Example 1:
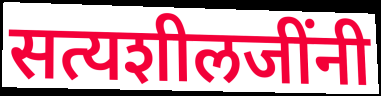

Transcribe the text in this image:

सत्यशीलजींनी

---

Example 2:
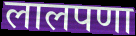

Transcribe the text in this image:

लालपणा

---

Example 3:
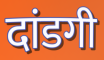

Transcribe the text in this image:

दांडगी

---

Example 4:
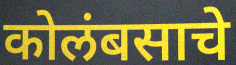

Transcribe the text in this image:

कोलंबसाचे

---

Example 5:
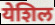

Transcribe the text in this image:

येशिल